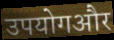
उपयोगऔर